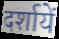
दर्शायें